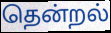
தென்றல்